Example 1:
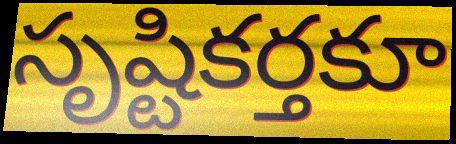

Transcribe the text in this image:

సృష్టికర్తకూ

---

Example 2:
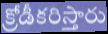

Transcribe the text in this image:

క్రోడీకరిస్తారు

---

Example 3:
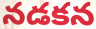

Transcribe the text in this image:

నడకన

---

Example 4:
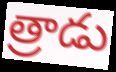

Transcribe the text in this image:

త్రాడు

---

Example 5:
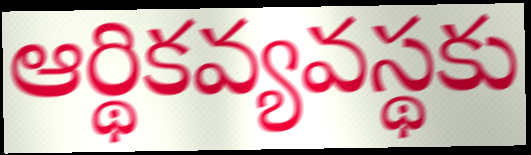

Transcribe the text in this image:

ఆర్థికవ్యవస్థకు